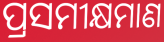
ପ୍ରସମୀକ୍ଷମାଣ